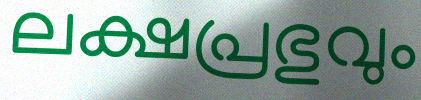
ലക്ഷപ്രഭുവും